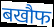
बखौफ